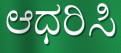
ಆಧರಿಸಿ